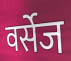
वर्सेज